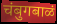
चंबुगबाळं